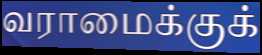
வராமைக்குக்